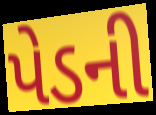
પેડની